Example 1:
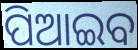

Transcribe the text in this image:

ପିଆଇବ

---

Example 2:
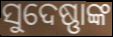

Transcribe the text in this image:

ସୁଦେଷ୍ଣାଙ୍କ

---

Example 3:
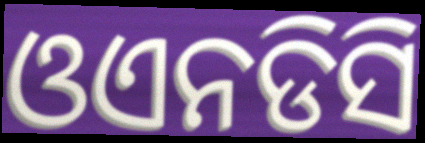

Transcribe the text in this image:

ଓଏନଡିସି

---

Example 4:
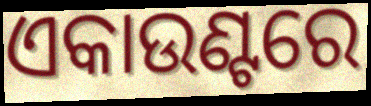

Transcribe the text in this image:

ଏକାଉଣ୍ଟରେ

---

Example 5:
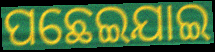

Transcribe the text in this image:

ପଛେଇଯାଇ